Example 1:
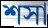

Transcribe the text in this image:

শসা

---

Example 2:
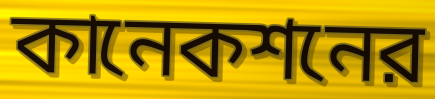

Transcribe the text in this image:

কানেকশনের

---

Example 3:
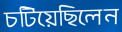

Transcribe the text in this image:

চটিয়েছিলেন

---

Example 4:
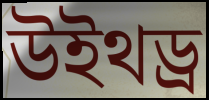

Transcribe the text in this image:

উইথড্র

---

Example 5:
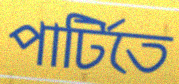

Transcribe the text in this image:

পার্টিতে